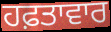
ਹਫ਼ਤਾਵਾਰ